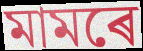
মামৰে